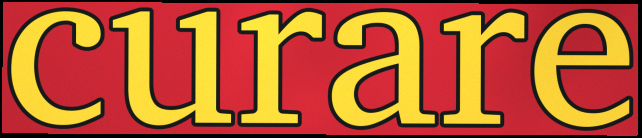
curare